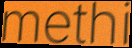
methi